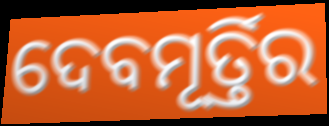
ଦେବମୂର୍ତ୍ତିର